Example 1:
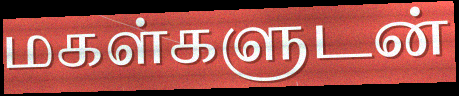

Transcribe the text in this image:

மகள்களுடன்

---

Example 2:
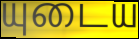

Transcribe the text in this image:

யுடைய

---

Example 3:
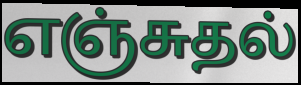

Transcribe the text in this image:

எஞ்சுதல்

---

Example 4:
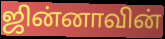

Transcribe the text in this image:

ஜின்னாவின்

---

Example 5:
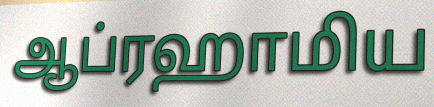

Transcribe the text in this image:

ஆப்ரஹாமிய